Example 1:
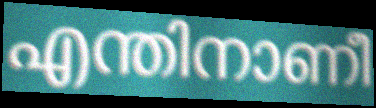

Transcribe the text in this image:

എന്തിനാണീ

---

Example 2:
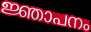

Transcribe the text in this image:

ജ്ഞാപനം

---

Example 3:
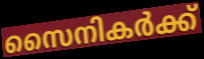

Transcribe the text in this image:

സൈനികർക്ക്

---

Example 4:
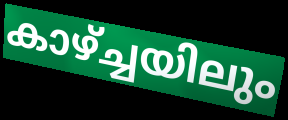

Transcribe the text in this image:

കാഴ്ച്ചയിലും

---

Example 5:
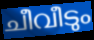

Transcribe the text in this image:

ചീവീടും